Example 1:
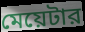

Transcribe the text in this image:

মেয়েটার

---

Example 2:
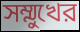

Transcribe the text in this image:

সম্মুখের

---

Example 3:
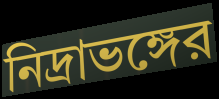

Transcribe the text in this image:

নিদ্রাভঙ্গের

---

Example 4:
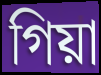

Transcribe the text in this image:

গিয়া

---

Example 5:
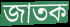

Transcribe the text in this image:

জাতক